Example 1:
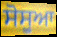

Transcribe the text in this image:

ਸੋਸੂਆ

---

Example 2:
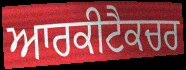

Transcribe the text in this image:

ਆਰਕੀਟੈਕਚਰ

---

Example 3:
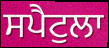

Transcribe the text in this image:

ਸਪੈਟੁਲਾ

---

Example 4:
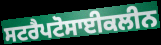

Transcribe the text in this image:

ਸਟਰੈਪਟੋਸਾਈਕਲੀਨ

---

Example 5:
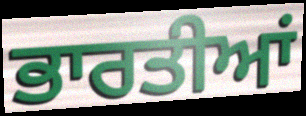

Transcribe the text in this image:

ਭਾਰਤੀਆਂ